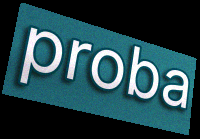
proba